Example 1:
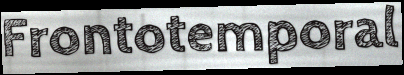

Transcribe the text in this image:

Frontotemporal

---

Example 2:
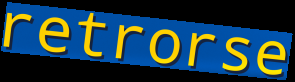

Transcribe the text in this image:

retrorse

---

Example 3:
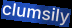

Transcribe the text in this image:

clumsily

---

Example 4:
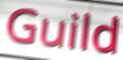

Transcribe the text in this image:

Guild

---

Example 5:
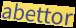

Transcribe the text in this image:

abettor